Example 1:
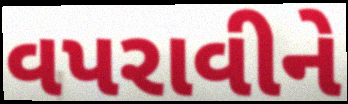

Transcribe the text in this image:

વપરાવીને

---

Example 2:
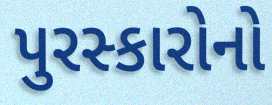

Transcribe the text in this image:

પુરસ્કારોનો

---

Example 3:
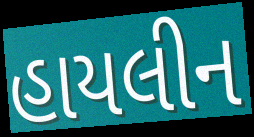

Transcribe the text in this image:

હાયલીન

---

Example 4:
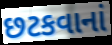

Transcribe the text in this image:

છટકવાનાં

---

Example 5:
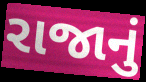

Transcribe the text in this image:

રાજાનું